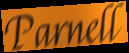
Parnell